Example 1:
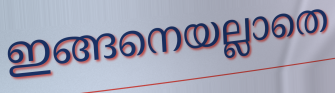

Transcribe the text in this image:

ഇങ്ങനെയല്ലാതെ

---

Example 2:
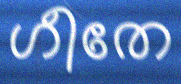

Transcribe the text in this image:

ഗീതേ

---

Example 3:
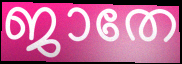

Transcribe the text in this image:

ജാതേ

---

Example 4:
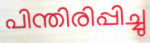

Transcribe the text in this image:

പിന്തിരിപ്പിച്ചു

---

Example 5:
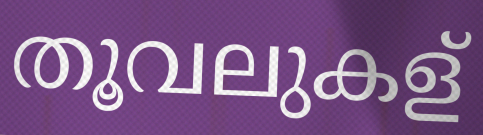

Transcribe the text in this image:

തൂവലുകള്